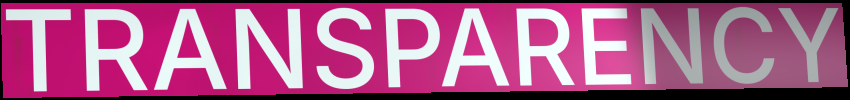
TRANSPARENCY